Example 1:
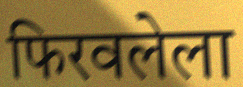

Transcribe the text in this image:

फिरवलेला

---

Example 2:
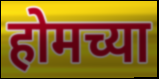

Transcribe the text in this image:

होमच्या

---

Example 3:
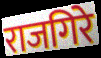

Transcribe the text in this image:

राजगिरे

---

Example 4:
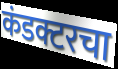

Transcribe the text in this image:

कंडक्टरचा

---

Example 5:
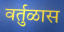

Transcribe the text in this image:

वर्तुळास